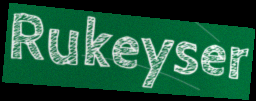
Rukeyser